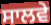
ਸਾਲਵੇ